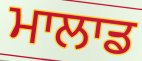
ਮਾਲਾਡ